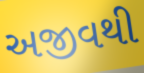
અજીવથી